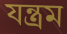
যন্ত্রম